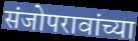
संजोपरावांच्या